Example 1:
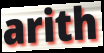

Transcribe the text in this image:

arith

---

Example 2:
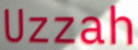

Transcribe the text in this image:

Uzzah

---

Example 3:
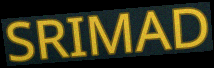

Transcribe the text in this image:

SRIMAD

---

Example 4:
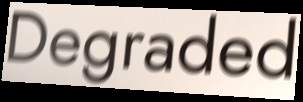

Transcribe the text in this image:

Degraded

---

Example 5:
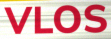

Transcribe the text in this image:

VLOS